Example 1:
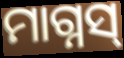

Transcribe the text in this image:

ମାଗ୍ନସ୍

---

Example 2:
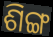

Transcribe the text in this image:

ଶିଙ୍ଗ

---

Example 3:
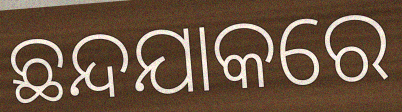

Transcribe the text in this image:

ଛନ୍ଦଯାକରେ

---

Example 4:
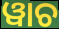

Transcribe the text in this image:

ୱାଚ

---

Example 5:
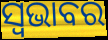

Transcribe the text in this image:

ସ୍ଵଭାବର